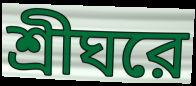
শ্রীঘরে